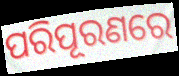
ପରିପୂରଣରେ